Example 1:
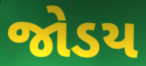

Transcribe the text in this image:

જોડય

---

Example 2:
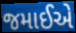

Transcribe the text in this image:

જમાઈએ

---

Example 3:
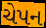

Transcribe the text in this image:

ચેપન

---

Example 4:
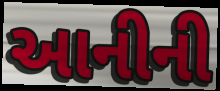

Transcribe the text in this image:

આનીની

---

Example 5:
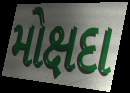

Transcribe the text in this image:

મોક્ષદા